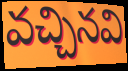
వచ్చినవి